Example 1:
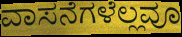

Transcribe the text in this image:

ವಾಸನೆಗಳೆಲ್ಲವೂ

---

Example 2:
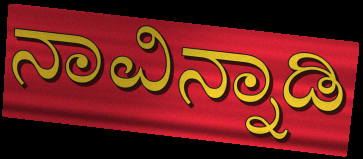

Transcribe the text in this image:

ನಾವಿನ್ನಾಡಿ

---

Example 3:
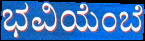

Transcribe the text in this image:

ಭವಿಯೆಂಬೆ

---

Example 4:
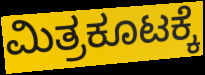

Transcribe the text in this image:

ಮಿತ್ರಕೂಟಕ್ಕೆ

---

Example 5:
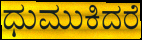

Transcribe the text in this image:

ಧುಮುಕಿದರೆ